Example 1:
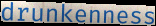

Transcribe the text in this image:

drunkenness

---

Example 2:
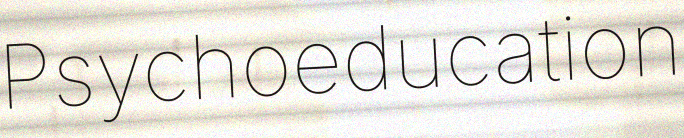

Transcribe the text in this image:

Psychoeducation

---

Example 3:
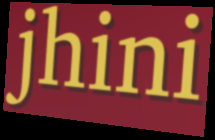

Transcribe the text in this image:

jhini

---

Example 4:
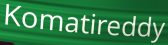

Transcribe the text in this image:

Komatireddy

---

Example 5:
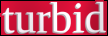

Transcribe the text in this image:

turbid